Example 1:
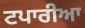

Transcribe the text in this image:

ਟਪਾਰੀਆ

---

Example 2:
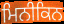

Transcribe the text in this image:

ਮਿਨੀਕਿਨ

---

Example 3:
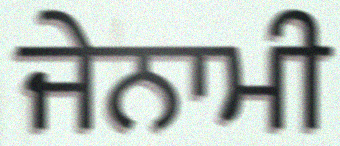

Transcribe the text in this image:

ਜੇਨਾਮੀ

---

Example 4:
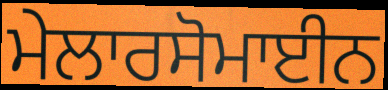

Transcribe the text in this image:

ਮੇਲਾਰਸੋਮਾਈਨ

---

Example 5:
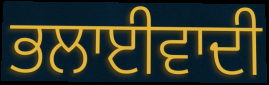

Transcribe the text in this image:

ਭਲਾਈਵਾਦੀ